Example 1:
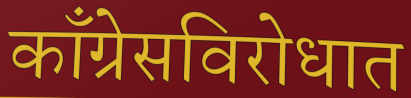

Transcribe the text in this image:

काँग्रेसविरोधात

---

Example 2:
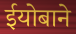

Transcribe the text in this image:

ईयोबाने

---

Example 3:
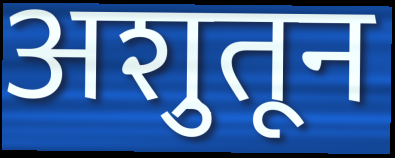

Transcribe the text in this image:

अश्रुतून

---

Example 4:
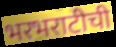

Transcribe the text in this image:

भरभराटीची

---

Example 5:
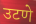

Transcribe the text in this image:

उटणे